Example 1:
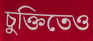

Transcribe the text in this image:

চুক্তিতেও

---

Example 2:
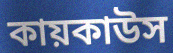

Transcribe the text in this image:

কায়কাউস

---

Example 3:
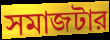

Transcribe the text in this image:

সমাজটার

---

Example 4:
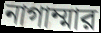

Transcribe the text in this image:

নাগাম্মার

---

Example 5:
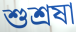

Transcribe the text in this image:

শুশ্রষা